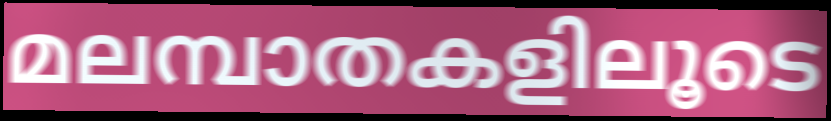
മലമ്പാതകളിലൂടെ